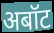
अबॉट